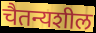
चैतन्यशील